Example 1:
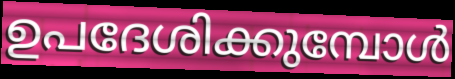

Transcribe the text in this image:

ഉപദേശിക്കുമ്പോൾ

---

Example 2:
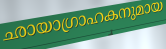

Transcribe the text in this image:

ഛായാഗ്രാഹകനുമായ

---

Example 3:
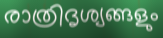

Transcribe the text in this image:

രാത്രിദൃശ്യങ്ങളും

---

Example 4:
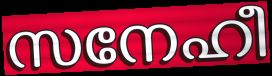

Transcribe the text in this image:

സനേഹീ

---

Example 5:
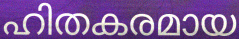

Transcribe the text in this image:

ഹിതകരമായ